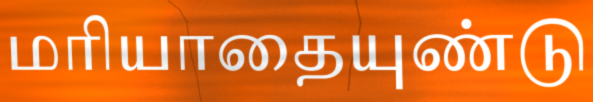
மரியாதையுண்டு